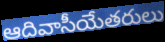
ఆదివాసీయేతరులు